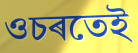
ওচৰতেই